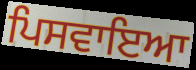
ਪਿਸਵਾਇਆ